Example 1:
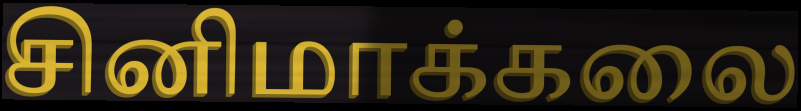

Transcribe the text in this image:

சினிமாக்கலை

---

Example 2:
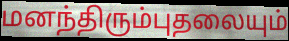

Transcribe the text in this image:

மனந்திரும்புதலையும்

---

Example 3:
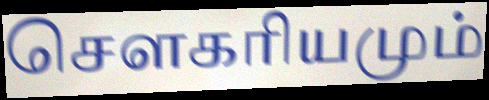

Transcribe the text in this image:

சௌகரியமும்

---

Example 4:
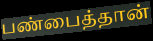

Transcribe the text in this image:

பண்பைத்தான்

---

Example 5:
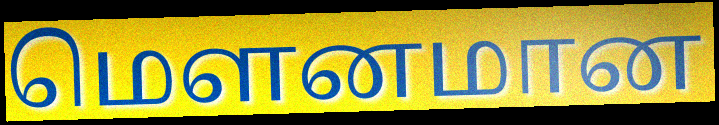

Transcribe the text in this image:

மௌனமான